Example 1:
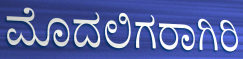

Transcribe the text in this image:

ಮೊದಲಿಗರಾಗಿರಿ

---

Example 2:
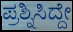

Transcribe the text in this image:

ಪ್ರಶ್ನಿಸಿದ್ದೇ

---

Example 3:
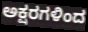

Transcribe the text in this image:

ಅಕ್ಷರಗಳಿಂದ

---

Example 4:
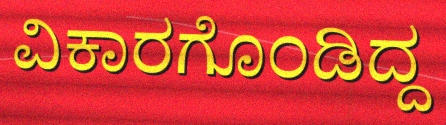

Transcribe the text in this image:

ವಿಕಾರಗೊಂಡಿದ್ದ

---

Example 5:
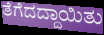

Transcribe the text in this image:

ತೆಗೆದದ್ದಾಯಿತು